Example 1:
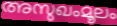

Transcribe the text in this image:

അസുഖംമൂലം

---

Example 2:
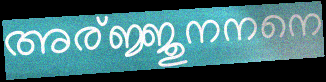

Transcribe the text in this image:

അര്ജ്ജുനനനെ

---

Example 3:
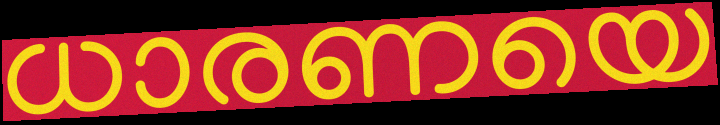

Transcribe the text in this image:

ധാരണയെ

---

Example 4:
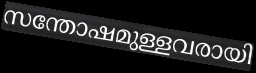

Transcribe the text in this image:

സന്തോഷമുള്ളവരായി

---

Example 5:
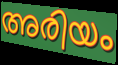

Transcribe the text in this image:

അരിയം